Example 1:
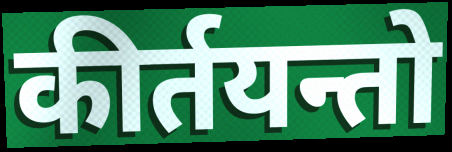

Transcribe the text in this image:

कीर्तयन्तो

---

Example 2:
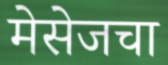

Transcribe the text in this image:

मेसेजचा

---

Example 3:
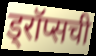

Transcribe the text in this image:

ड्रॉप्सची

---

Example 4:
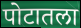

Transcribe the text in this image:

पोटातला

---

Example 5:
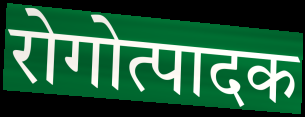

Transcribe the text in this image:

रोगोत्पादक